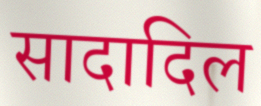
सादादिल